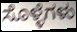
ಸೊಳ್ಳೆಗಳು